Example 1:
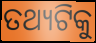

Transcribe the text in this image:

ତଥ୍ୟଟିକୁ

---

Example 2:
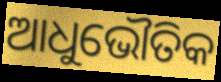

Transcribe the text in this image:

ଆଧୁଭୌତିକ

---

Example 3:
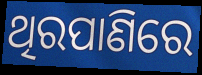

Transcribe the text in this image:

ଥିରପାଣିରେ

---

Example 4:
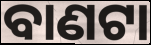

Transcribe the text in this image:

ବାଣଟା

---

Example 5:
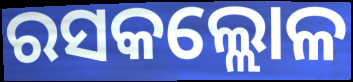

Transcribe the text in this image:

ରସକଲ୍ଲୋଳ